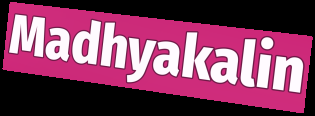
Madhyakalin